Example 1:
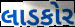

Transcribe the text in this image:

લાડકોર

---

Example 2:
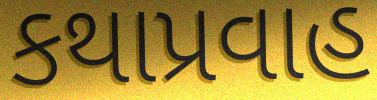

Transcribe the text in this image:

કથાપ્રવાહ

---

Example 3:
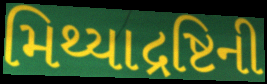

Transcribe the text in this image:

મિથ્યાદ્રષ્ટિની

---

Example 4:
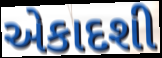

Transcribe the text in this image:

એકાદશી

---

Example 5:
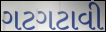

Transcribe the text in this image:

ગટગટાવી